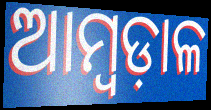
ଆମ୍ବଡ଼ାଳ